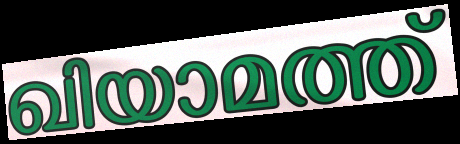
ഖിയാമത്ത്